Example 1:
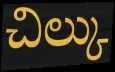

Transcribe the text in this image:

చిల్కు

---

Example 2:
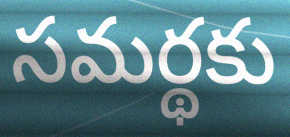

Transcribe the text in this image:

సమర్థకు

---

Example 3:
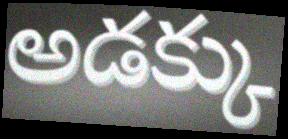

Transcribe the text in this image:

అడక్కు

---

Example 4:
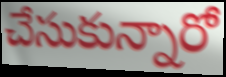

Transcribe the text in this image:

చేసుకున్నారో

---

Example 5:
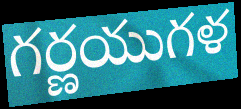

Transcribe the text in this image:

గర్ణయుగళ